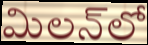
మిలన్‌లో